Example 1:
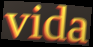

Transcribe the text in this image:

vida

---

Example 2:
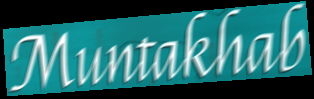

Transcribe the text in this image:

Muntakhab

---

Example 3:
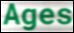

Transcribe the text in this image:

Ages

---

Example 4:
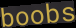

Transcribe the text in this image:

boobs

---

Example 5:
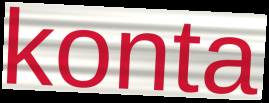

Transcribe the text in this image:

konta